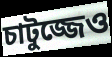
চাটুজ্জেও